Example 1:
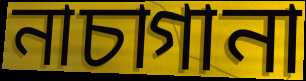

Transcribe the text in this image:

নাচাগানা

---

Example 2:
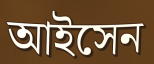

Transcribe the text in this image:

আইসেন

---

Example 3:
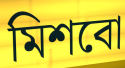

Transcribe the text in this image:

মিশবো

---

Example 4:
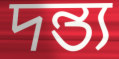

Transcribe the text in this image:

দন্ত্য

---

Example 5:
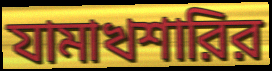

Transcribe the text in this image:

যামাখশারির